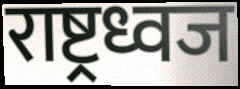
राष्ट्रध्वज